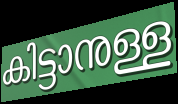
കിട്ടാനുള്ള